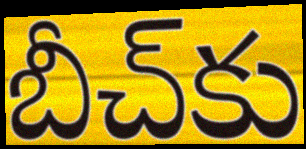
బీచ్‌కు